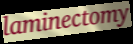
laminectomy